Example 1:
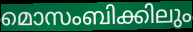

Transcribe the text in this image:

മൊസംബിക്കിലും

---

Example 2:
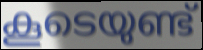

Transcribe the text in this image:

കൂടെയുണ്ട്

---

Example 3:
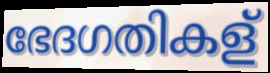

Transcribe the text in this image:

ഭേദഗതികള്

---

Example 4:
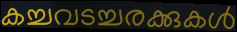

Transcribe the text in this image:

കച്ചവടച്ചരക്കുകൾ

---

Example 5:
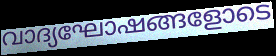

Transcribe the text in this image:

വാദ്യഘോഷങ്ങളോടെ